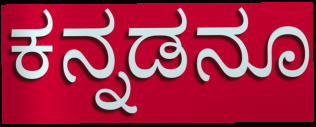
ಕನ್ನಡನೂ